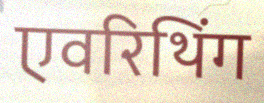
एवरिथिंग